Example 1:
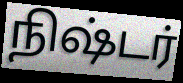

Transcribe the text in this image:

நிஷ்டர்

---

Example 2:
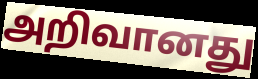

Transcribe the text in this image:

அறிவானது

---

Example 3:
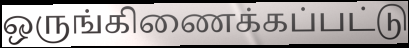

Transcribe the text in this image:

ஒருங்கிணைக்கப்பட்டு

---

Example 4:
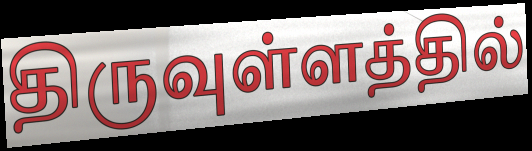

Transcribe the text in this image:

திருவுள்ளத்தில்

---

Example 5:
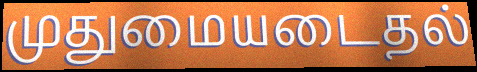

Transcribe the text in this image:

முதுமையடைதல்